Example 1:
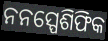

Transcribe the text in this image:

ନନସ୍ପେଶିଫିକ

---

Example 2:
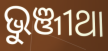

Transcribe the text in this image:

ଭୁଞ୍ଜୀଥା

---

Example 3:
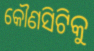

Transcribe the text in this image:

କୌଣସିଟିକୁ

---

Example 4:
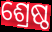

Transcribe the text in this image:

ଶ୍ରେଷ୍ଠ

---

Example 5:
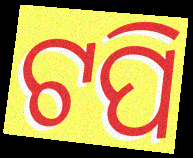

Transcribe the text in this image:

ଟପି